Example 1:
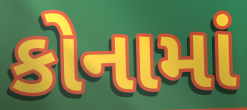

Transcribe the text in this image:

કોનામાં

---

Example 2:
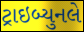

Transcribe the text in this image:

ટ્રાઇબ્યુનલે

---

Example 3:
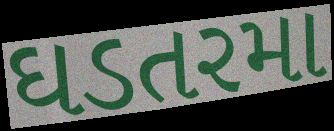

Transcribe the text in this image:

ઘડતરમા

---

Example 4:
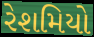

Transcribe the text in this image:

રેશમિયો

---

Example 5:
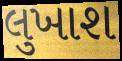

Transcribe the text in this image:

લુખાશ